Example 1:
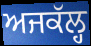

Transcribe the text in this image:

ਅਜਕੱਲ੍ਹ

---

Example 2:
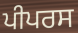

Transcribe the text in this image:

ਪੀਪਰਸ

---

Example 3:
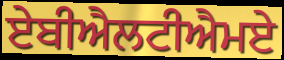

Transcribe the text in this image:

ਏਬੀਐਲਟੀਐਮਏ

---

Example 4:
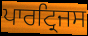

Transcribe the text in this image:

ਪਾਰਟ੍ਰਿਜਸ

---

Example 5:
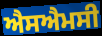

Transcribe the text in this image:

ਐਸਐਮਸੀ